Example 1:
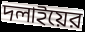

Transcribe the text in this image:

দলাইয়ের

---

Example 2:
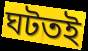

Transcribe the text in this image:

ঘটতই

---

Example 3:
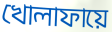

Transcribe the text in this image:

খোলাফায়ে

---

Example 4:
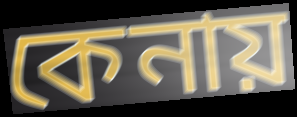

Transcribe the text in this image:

কেনায়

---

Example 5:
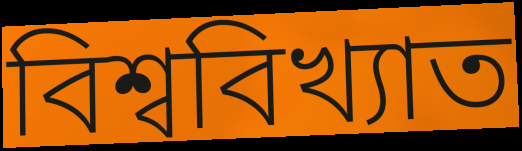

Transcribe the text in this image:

বিশ্ববিখ্যাত